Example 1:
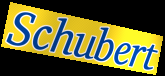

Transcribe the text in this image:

Schubert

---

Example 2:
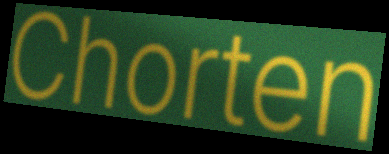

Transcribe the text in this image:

Chorten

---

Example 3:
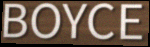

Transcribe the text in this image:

BOYCE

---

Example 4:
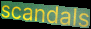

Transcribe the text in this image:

scandals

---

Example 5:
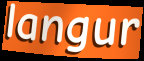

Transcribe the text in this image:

langur